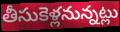
తీసుకెళ్లనున్నట్లు